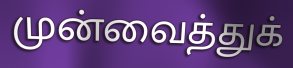
முன்வைத்துக்